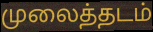
முலைத்தடம்